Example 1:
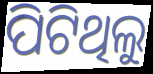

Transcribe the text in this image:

ପିଟିଥିଲୁ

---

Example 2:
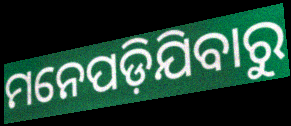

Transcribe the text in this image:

ମନେପଡ଼ିଯିବାରୁ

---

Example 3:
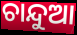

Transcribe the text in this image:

ଚାନ୍ଦୁଆ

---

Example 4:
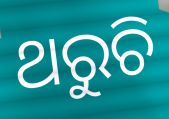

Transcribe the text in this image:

ଥରୁଚି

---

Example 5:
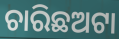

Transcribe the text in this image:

ଚାରିଛଅଟା